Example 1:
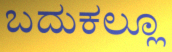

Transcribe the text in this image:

ಬದುಕಲ್ಲೂ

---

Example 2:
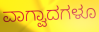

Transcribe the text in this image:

ವಾಗ್ವಾದಗಳೂ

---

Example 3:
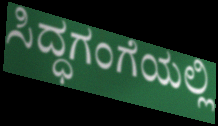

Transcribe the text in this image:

ಸಿದ್ಧಗಂಗೆಯಲ್ಲಿ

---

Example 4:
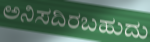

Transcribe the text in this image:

ಅನಿಸದಿರಬಹುದು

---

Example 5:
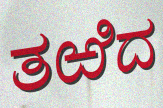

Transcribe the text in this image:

ತಱಿದ